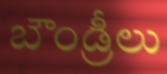
బౌండ్రీలు